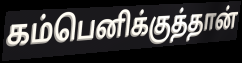
கம்பெனிக்குத்தான்